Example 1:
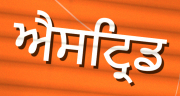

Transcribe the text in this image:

ਐਸਟ੍ਰਿਡ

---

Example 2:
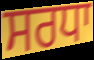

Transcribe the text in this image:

ਸਰਧਾ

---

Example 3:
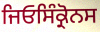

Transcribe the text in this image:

ਜਿਓਸਿੰਕ੍ਰੋਨਸ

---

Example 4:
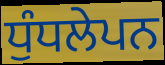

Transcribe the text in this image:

ਧੁੰਧਲੇਪਨ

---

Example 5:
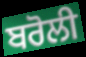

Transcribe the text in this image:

ਬਰੋਲੀ